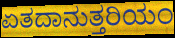
ಏತದಾನುತ್ತರಿಯಂ